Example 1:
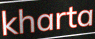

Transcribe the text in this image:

kharta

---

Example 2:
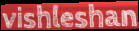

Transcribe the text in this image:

vishleshan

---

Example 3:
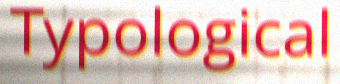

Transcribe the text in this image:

Typological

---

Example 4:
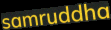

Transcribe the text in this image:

samruddha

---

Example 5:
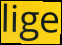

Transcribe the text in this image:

lige